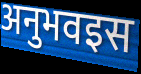
अनुभवइस